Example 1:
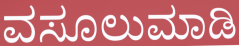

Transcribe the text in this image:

ವಸೂಲುಮಾಡಿ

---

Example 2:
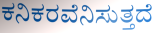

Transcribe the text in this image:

ಕನಿಕರವೆನಿಸುತ್ತದೆ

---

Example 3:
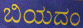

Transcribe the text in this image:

ಬಿಯದಂ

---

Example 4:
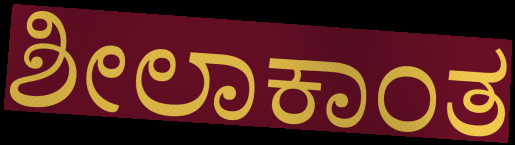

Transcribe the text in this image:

ಶೀಲಾಕಾಂತ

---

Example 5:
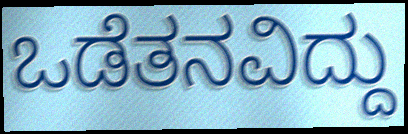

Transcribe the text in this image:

ಒಡೆತನವಿದ್ದು